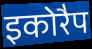
इकोरैप